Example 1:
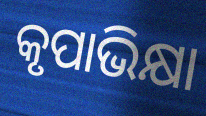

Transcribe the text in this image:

କୃପାଭିକ୍ଷା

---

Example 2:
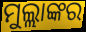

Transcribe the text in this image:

ମୁଲ୍ଲାଙ୍କର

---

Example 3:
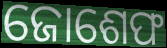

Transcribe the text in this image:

ଜୋଶେଫ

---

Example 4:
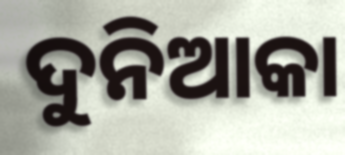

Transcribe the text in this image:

ଦୁନିଆକା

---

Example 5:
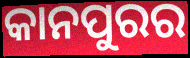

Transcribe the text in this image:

କାନପୁରର